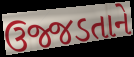
ઉજ્જડતાને